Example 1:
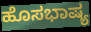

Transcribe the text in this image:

ಹೊಸಭಾಷ್ಯ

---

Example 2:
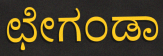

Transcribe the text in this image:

ಛೇಗಂಡಾ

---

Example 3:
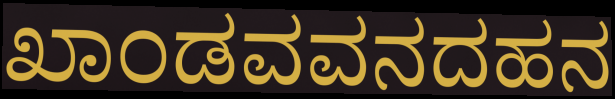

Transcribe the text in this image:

ಖಾಂಡವವನದಹನ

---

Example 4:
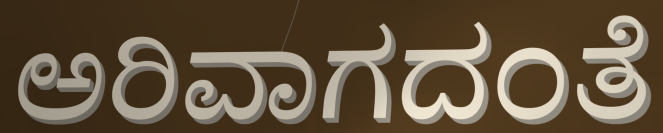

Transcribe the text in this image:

ಅರಿವಾಗದಂತೆ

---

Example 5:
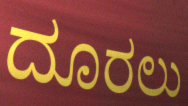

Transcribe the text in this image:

ದೂರಲು